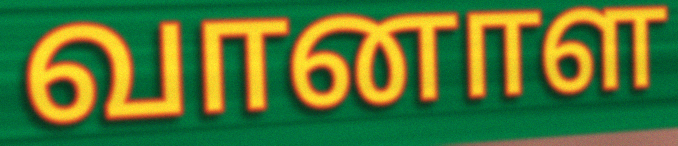
வானாள